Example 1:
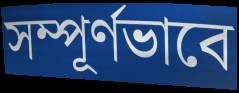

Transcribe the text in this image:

সম্পূৰ্ণভাবে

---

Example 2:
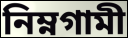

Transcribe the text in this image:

নিম্নগামী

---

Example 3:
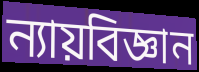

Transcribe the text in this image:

ন্যায়বিজ্ঞান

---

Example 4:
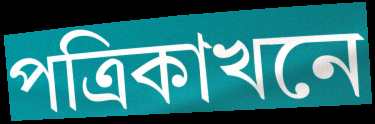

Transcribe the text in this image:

পত্ৰিকাখনে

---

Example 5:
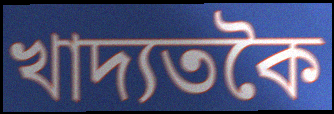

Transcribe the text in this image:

খাদ্যতকৈ